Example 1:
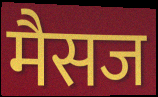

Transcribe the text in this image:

मैसज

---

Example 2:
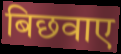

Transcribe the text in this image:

बिछवाए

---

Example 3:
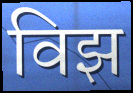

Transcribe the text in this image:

विझ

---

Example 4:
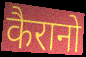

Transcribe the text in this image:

कैरानो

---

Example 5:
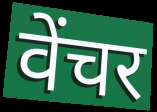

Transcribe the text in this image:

वेंचर